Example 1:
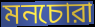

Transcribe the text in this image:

মনচোরা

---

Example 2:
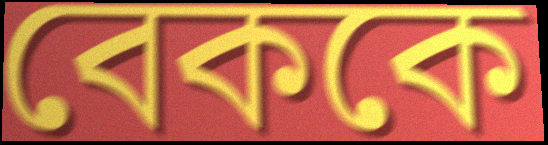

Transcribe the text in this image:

বেককে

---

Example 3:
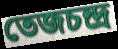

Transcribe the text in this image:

তেজচন্দ্র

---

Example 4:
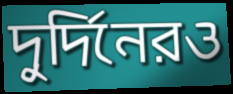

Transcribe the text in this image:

দুর্দিনেরও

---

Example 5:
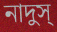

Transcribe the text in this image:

নাদুস্